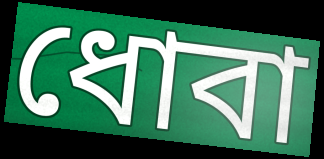
ধোবা